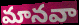
మానవా